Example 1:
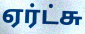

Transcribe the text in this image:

ஏர்ட்சு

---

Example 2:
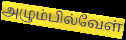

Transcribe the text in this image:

அழும்பில்வேள்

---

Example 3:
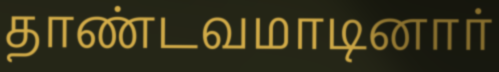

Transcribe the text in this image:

தாண்டவமாடினார்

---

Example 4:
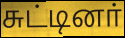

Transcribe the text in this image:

சுட்டினர்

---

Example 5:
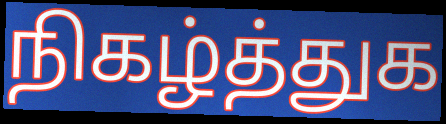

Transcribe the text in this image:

நிகழ்த்துக